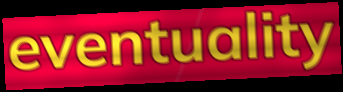
eventuality